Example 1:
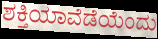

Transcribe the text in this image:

ಶಕ್ತಿಯಾವೆಡೆಯೆಂದು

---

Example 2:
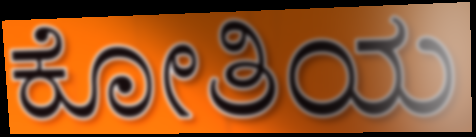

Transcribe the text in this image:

ಕೋತಿಯ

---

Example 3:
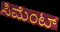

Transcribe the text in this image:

ಸಿಮೆಂಟ್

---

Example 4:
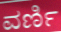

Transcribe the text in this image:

ವರ್ಣಿ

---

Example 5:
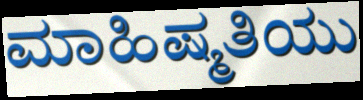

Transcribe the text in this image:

ಮಾಹಿಷ್ಮತಿಯು